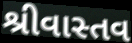
શ્રીવાસ્તવ